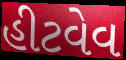
હીટવેવ